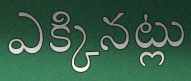
ఎక్కినట్లు